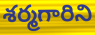
శర్మగారిని